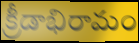
క్రీడాభిరామం